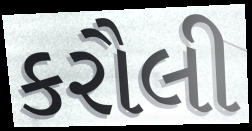
કરૌલી